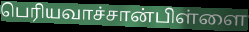
பெரியவாச்சான்பிள்ளை